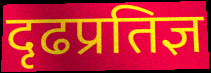
दृढप्रतिज्ञ